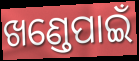
ଖଣ୍ଡେପାଇଁ